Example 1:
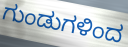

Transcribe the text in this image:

ಗುಂಡುಗಳಿಂದ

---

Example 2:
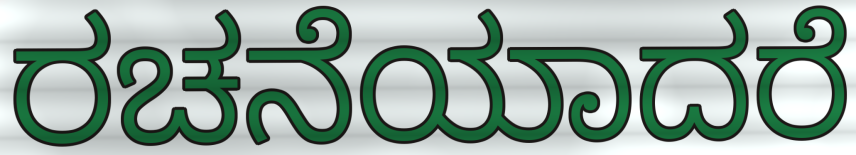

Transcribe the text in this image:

ರಚನೆಯಾದರೆ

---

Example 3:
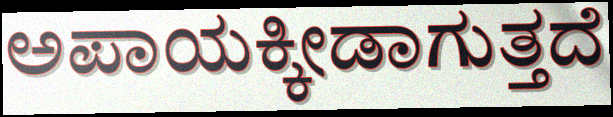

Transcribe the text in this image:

ಅಪಾಯಕ್ಕೀಡಾಗುತ್ತದೆ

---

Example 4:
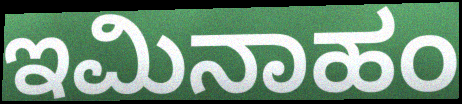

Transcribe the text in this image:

ಇಮಿನಾಹಂ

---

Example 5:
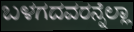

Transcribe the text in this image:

ಬಳಗದವರನ್ನೆಲ್ಲಾ